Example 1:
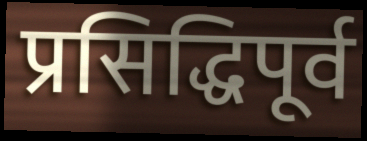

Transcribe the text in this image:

प्रसिद्धिपूर्व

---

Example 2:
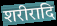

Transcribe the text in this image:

शरीरादि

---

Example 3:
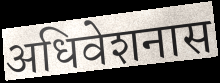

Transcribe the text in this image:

अधिवेशनास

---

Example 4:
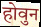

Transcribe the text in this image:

होवुन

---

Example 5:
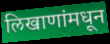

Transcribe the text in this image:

लिखाणांमधून